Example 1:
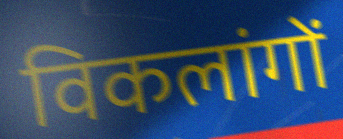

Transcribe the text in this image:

विकलांगों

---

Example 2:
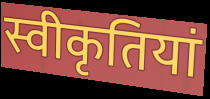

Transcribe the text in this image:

स्वीकृतियां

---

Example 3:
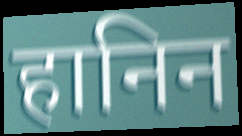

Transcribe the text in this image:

हानिन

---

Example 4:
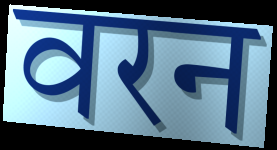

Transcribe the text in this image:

वरन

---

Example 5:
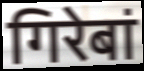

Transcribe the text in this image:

गिरेबां